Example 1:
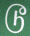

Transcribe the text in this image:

டூ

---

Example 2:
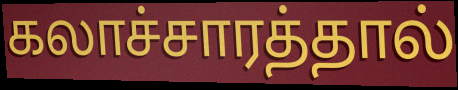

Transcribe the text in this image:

கலாச்சாரத்தால்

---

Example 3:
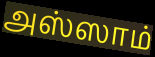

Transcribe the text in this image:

அஸ்ஸாம்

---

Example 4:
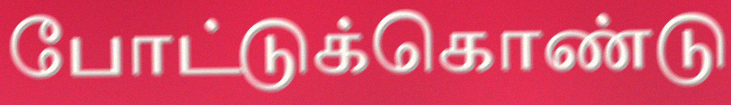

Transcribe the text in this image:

போட்டுக்கொண்டு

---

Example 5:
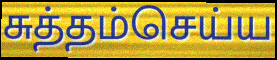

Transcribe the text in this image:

சுத்தம்செய்ய